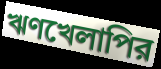
ঋণখেলাপির